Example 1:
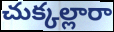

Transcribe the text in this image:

చుక్కల్లారా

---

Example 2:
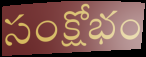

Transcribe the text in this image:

సంక్షోభం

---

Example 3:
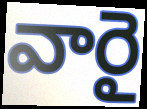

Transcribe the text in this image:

వారై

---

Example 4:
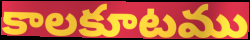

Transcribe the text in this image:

కాలకూటము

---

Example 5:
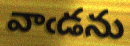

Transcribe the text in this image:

వాఁడను